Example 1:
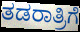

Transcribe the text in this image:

ತಡರಾತ್ರಿಗೆ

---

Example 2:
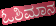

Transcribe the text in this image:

ಓಶಿಮಾನ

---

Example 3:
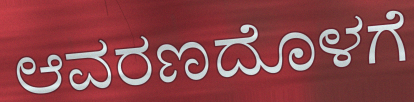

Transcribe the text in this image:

ಆವರಣದೊಳಗೆ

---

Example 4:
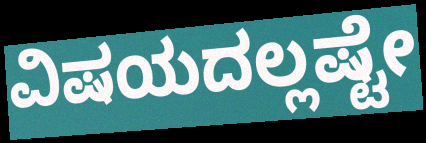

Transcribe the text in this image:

ವಿಷಯದಲ್ಲಷ್ಟೇ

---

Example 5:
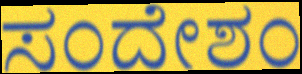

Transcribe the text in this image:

ಸಂದೇಶಂ